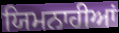
ਯਿਮਨਾਹੀਆਂ